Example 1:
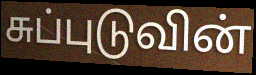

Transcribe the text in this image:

சுப்புடுவின்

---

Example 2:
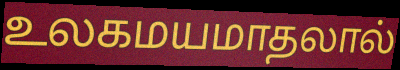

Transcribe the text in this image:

உலகமயமாதலால்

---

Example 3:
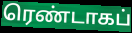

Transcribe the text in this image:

ரெண்டாகப்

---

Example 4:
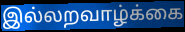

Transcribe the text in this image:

இல்லறவாழ்க்கை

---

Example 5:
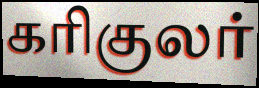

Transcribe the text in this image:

கரிகுலர்